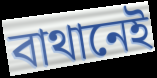
বাথানেই